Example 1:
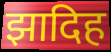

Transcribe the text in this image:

झादिह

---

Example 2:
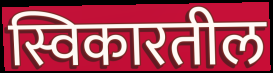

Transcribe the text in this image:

स्विकारतील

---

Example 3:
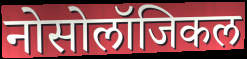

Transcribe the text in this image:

नोसोलॉजिकल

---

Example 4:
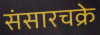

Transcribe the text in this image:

संसारचक्रे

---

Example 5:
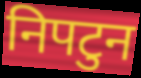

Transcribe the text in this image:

निपटुन